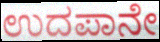
ಉದಪಾನೇ